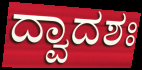
ದ್ವಾದಶಃ